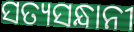
ସତ୍ୟସନ୍ଧାନୀ